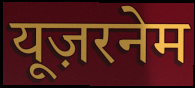
यूज़रनेम